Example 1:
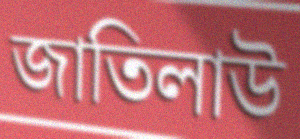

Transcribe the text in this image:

জাতিলাউ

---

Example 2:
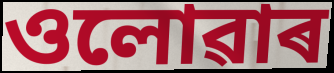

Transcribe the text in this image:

ওলোৱাৰ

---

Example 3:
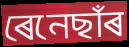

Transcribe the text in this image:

ৰেনেছাঁৰ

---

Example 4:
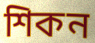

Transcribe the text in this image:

শিকন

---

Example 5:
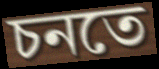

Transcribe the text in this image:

চনতে